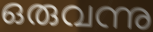
ഒരുവന്നു